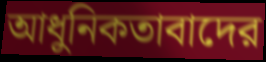
আধুনিকতাবাদের